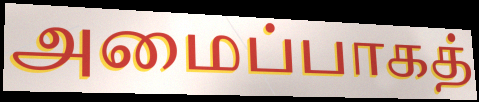
அமைப்பாகத்